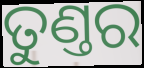
ତୁଣ୍ତର